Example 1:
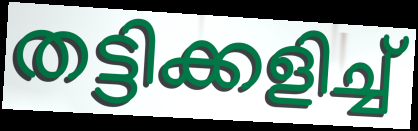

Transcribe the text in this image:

തട്ടിക്കളിച്ച്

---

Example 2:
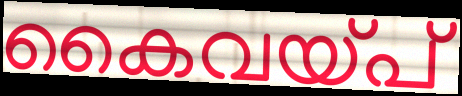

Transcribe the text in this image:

കൈവയ്പ്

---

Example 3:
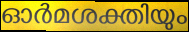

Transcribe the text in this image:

ഓർമശക്തിയും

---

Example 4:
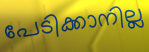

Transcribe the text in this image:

പേടിക്കാനില്ല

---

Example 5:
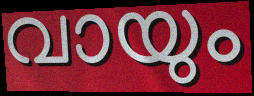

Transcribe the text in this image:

വായും